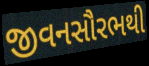
જીવનસૌરભથી